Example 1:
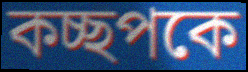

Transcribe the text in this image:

কচ্ছপকে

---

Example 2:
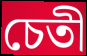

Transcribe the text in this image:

চেতী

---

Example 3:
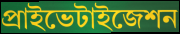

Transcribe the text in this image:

প্রাইভেটাইজেশন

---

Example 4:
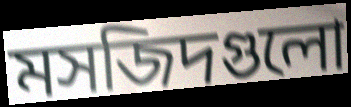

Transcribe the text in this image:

মসজিদগুলো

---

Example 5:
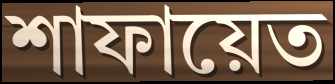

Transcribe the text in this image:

শাফায়েত